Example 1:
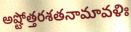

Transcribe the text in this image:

అష్టోత్తరశతనామావళిః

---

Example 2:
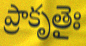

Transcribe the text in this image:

ప్రాకృతైః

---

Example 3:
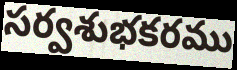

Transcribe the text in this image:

సర్వశుభకరము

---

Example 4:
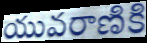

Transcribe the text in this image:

యువరాణికి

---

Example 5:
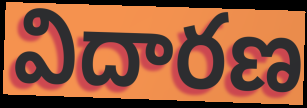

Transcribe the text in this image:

విదారణ